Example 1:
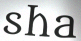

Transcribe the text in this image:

sha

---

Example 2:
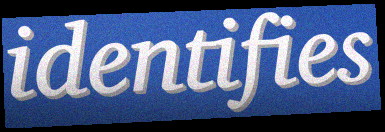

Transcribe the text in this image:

identifies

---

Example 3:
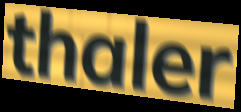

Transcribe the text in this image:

thaler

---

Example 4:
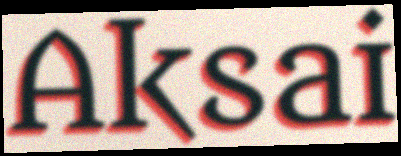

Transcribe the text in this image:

Aksai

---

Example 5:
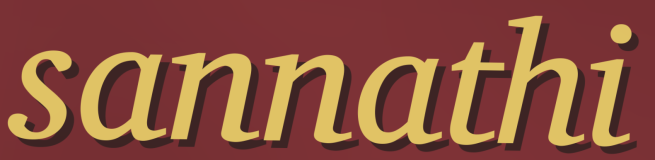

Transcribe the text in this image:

sannathi